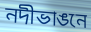
নদীভাঙনে